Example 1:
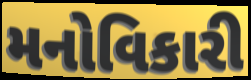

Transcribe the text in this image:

મનોવિકારી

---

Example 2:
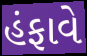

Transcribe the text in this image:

હંફાવે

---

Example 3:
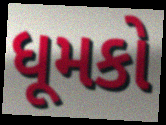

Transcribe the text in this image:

ધૂમકો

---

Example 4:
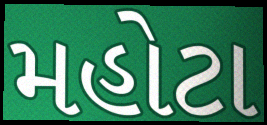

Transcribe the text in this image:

મહોટા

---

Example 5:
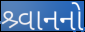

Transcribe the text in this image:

શ્ર્વાનનો